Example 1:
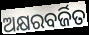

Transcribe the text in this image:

ଅକ୍ଷରବର୍ଜିତ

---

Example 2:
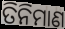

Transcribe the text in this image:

ତିନିମାଣ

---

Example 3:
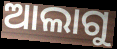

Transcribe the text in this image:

ଆଲାଗୁ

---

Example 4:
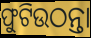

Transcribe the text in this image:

ଫୁଟିଉଠନ୍ତା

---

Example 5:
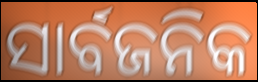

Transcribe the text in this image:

ସାର୍ବଜନିକ